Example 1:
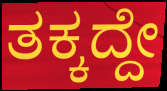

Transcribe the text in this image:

ತಕ್ಕದ್ದೇ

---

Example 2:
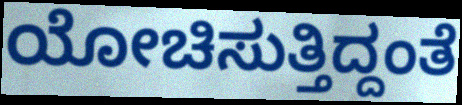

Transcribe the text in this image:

ಯೋಚಿಸುತ್ತಿದ್ದಂತೆ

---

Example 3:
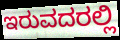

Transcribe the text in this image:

ಇರುವದರಲ್ಲಿ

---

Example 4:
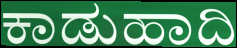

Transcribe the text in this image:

ಕಾಡುಹಾದಿ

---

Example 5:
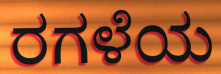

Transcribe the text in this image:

ರಗಳೆಯ